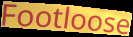
Footloose